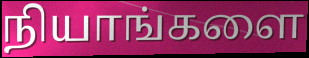
நியாங்களை